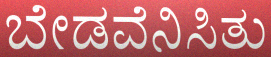
ಬೇಡವೆನಿಸಿತು